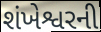
શંખેશ્વરની